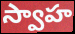
స్వాహ